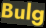
Bulg